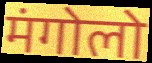
मंगोलो